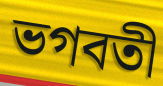
ভগবতী